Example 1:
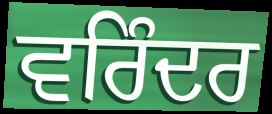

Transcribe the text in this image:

ਵਰਿੰਦਰ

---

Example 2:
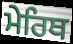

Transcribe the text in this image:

ਮੇਰਿਥ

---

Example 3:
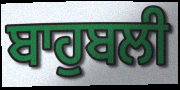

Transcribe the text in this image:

ਬਾਹੁਬਲੀ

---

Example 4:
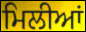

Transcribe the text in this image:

ਮਿਲੀਆਂ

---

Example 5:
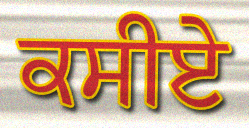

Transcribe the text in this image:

ਕਸੀਏ